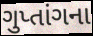
ગુપ્તાંગના